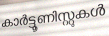
കാർട്ടൂണിസ്റ്റുകൾ